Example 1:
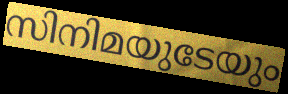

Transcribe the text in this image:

സിനിമയുടേയും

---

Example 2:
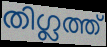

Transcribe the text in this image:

തിഗ്ലത്ത്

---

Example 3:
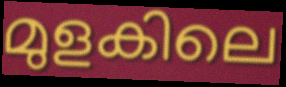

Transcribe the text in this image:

മുളകിലെ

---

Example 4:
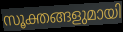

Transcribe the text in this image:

സൂക്തങ്ങളുമായി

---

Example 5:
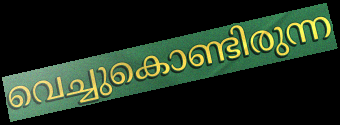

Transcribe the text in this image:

വെച്ചുകൊണ്ടിരുന്ന